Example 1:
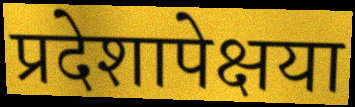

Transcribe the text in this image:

प्रदेशापेक्षया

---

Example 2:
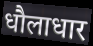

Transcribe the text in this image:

धौलाधार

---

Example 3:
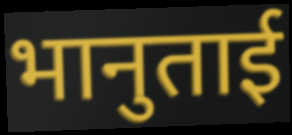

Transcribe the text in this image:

भानुताई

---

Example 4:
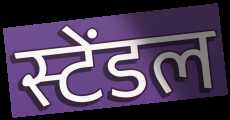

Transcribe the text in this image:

स्टेंडल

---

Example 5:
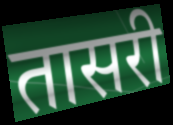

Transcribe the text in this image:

तासरी